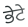
ਭੇਟੇ